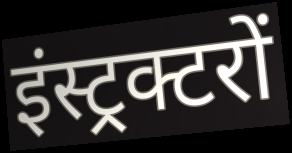
इंस्ट्रक्टरों